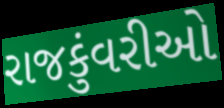
રાજકુંવરીઓ